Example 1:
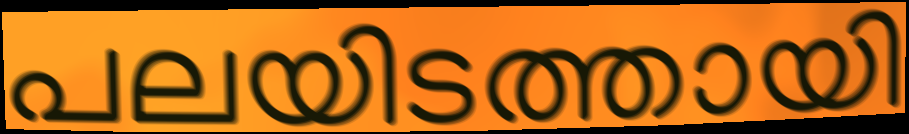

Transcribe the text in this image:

പലയിടത്തായി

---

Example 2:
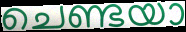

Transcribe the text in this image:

ചെണ്ടയാ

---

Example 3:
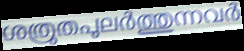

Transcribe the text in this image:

ശത്രുതപുലർത്തുന്നവർ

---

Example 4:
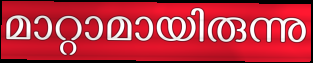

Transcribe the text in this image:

മാറ്റാമായിരുന്നു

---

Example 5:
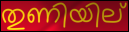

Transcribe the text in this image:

തുണിയില്